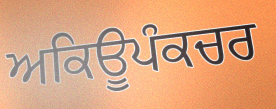
ਅਕਿਊਪੰਕਚਰ